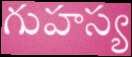
గుహస్య